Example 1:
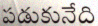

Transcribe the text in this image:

పడుకునేది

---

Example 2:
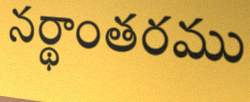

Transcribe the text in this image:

నర్థాంతరము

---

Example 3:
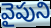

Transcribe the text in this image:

వైపుని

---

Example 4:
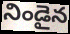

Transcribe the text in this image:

నిండైన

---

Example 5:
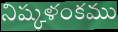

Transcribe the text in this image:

నిష్కళంకము